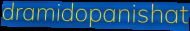
dramidopanishat